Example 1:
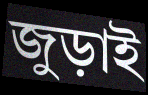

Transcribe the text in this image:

জুড়াই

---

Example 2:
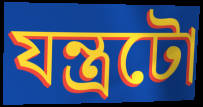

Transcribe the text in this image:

যন্ত্ৰটো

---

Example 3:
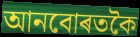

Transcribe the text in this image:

আনবোৰতকৈ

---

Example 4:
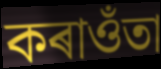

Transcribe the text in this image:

কৰাওঁতা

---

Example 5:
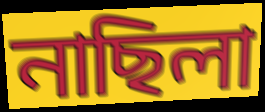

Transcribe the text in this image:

নাছিলা